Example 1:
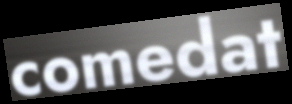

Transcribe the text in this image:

comedat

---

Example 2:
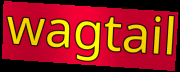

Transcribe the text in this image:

wagtail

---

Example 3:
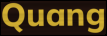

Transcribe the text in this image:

Quang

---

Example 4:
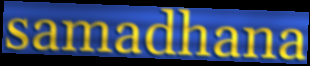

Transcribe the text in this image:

samadhana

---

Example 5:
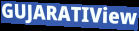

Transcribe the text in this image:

GUJARATIView